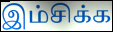
இம்சிக்க